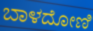
ಬಾಳದೋಣಿ